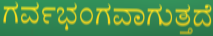
ಗರ್ವಭಂಗವಾಗುತ್ತದೆ